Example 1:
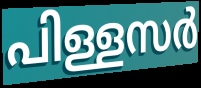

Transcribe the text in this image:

പിള്ളസർ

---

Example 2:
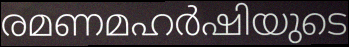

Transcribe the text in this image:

രമണമഹർഷിയുടെ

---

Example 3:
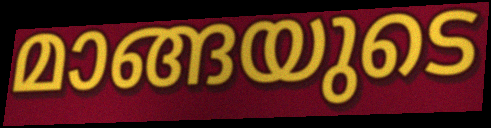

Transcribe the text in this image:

മാങ്ങയുടെ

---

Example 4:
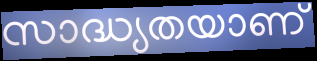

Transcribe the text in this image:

സാദ്ധ്യതയാണ്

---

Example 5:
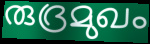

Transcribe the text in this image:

രുദ്രമുഖം